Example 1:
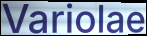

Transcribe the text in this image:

Variolae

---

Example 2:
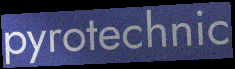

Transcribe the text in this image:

pyrotechnic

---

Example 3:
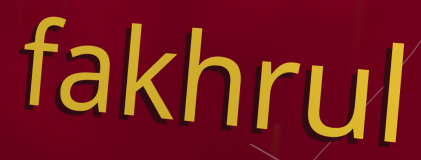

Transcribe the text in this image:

fakhrul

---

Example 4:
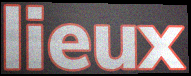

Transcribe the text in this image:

lieux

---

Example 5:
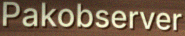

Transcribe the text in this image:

Pakobserver